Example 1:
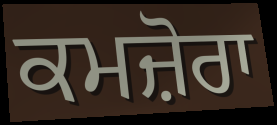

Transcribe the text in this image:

ਕਮਜ਼ੋਰਾ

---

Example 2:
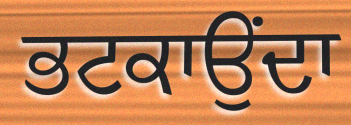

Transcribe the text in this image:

ਭਟਕਾਉਂਦਾ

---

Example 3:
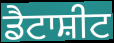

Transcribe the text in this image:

ਡੈਟਾਸ਼ੀਟ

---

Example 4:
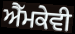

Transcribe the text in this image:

ਐੱਮਕੇਵੀ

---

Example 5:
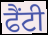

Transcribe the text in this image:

ਫੈਂਟੀ